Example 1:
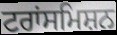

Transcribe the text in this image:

ਟਰਾਂਸਮਿਸ਼ਨ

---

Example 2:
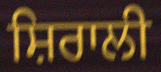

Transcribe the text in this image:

ਸ਼ਿਰਾਲੀ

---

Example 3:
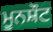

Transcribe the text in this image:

ਮੂਨਸ਼ੌਟ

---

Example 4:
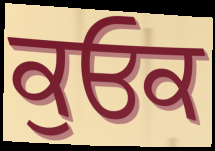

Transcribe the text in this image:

ਕੁਓਕ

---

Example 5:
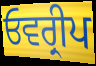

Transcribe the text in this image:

ਓਵਰ੍ਰੀਪ